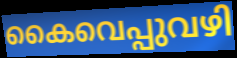
കൈവെപ്പുവഴി